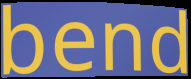
bend